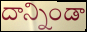
దాన్నిండా